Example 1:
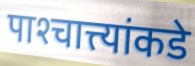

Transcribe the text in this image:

पाश्चात्त्यांकडे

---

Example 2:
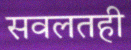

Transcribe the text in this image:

सवलतही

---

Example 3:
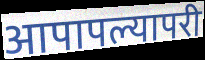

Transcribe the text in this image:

आपापल्यापरी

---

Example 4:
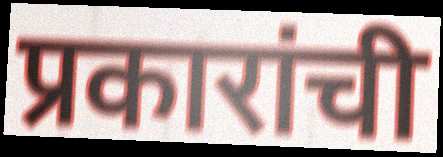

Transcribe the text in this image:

प्रकारांची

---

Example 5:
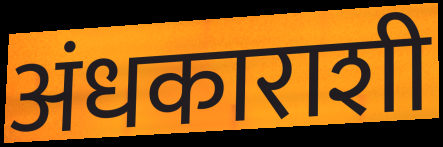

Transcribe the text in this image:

अंधकाराशी